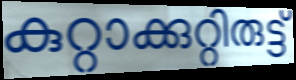
കുറ്റാക്കുറ്റിരുട്ട്